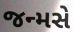
જન્મસે